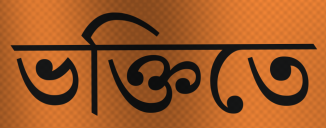
ভক্তিতে